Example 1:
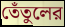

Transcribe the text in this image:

তেঁতুলের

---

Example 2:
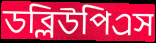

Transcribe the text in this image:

ডব্লিউপিএস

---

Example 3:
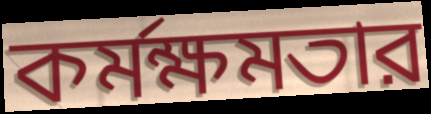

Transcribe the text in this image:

কর্মক্ষমতার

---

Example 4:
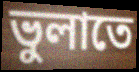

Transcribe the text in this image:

ভুলাতে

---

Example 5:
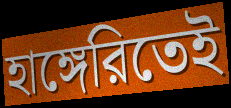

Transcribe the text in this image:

হাঙ্গেরিতেই